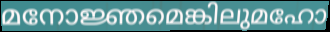
മനോജ്ഞമെങ്കിലുമഹോ